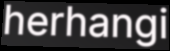
herhangi